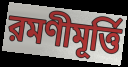
রমণীমূর্ত্তি